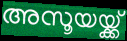
അസൂയയ്ക്ക്